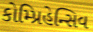
કોમ્પ્રિહેન્સિવ